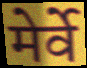
मेर्वे